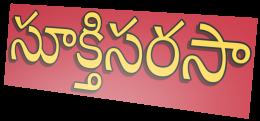
సూక్తిసరసా